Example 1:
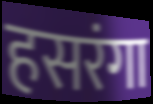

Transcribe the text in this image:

हसरंगा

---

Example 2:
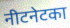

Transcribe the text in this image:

नीटनेटका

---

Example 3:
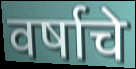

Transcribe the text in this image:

वर्षाचे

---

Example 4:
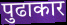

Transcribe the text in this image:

पुढाकार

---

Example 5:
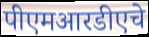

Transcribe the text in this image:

पीएमआरडीएचे